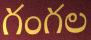
గంగల